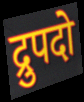
द्रुपदो